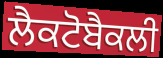
ਲੈਕਟੋਬੈਕਲੀ